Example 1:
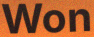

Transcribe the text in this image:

Won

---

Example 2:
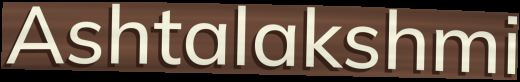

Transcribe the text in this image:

Ashtalakshmi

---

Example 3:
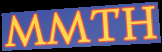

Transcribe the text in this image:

MMTH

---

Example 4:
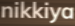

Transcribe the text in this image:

nikkiya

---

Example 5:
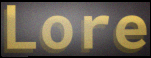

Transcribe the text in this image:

Lore